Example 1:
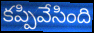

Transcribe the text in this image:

కప్పివేసింది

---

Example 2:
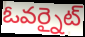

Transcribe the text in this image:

ఓవర్నైట్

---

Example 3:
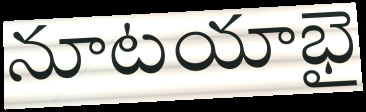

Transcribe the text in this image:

నూటయాభై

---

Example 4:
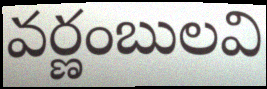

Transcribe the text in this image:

వర్ణంబులవి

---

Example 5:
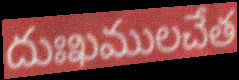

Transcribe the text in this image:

దుఃఖములచేత